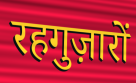
रहगुज़ारों